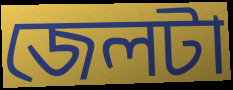
জেলটা